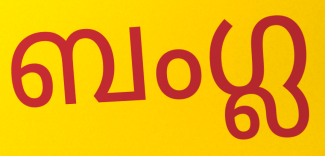
ബംഗ്ല